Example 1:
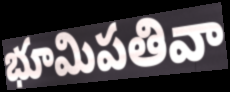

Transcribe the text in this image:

భూమిపతివా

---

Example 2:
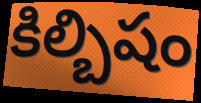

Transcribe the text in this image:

కిల్బిషం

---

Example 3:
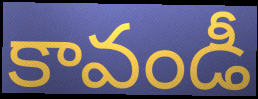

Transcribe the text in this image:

కావండీ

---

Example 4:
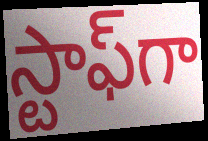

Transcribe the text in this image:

స్టాఫ్‌గా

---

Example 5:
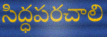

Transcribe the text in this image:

సిద్ధపరచాలి